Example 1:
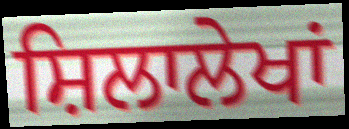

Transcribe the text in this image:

ਸ਼ਿਲਾਲੇਖਾਂ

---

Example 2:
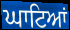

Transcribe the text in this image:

ਘਾਟਿਆਂ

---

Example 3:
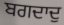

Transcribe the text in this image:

ਬਗਦਾਦੁ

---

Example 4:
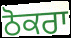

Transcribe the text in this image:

ਠੋਕਰਾ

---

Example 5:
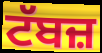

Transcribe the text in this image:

ਟੱਬਜ਼